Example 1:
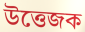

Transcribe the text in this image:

উত্তেজক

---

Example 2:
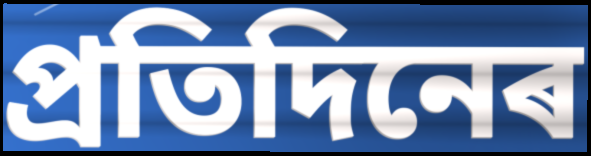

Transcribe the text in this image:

প্ৰতিদিনেৰ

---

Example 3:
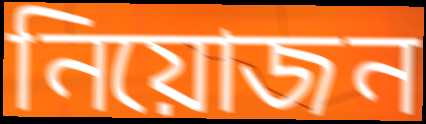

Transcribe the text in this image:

নিয়োজন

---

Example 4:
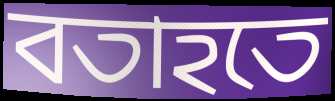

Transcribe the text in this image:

বতাহতে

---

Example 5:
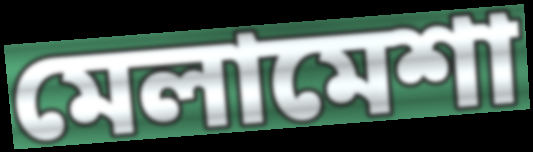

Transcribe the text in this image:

মেলামেশা